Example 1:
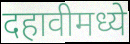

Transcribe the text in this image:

दहावीमध्ये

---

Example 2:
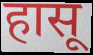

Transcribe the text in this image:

हासू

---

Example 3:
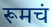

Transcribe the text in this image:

रूमचं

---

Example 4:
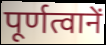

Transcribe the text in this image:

पूर्णत्वानें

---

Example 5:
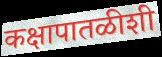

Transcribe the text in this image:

कक्षापातळीशी